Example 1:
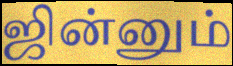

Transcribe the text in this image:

ஜின்னும்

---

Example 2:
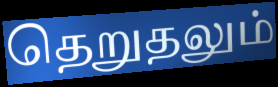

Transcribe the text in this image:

தெறுதலும்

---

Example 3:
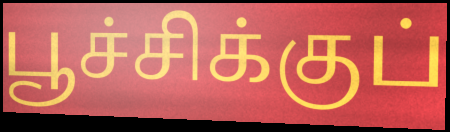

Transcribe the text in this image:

பூச்சிக்குப்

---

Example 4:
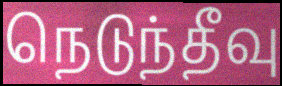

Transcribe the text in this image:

நெடுந்தீவு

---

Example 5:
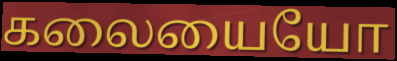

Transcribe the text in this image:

கலையையோ